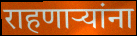
राहणाऱ्यांना